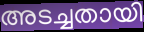
അടച്ചതായി